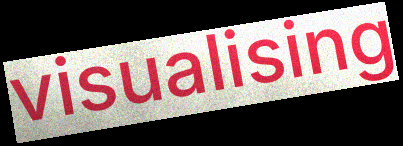
visualising